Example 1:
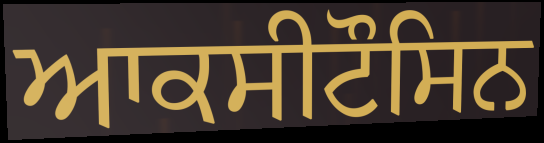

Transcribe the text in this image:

ਆਕਸੀਟੌਸਿਨ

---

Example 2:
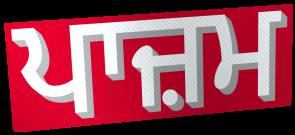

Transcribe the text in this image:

ਪਾਜ਼ਮ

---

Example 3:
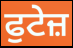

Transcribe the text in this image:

ਫੁਟੇਜ਼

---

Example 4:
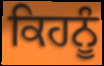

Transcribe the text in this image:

ਕਿਹਨੂੰ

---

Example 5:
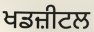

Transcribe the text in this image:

ਖਡਜ਼ੀਟਲ